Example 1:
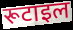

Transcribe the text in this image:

रूटाइल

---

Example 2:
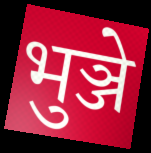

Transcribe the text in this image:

भुञ्जे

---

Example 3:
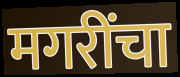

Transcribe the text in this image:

मगरींचा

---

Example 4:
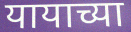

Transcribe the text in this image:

यायाच्या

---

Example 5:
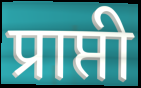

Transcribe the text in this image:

प्राप्ती